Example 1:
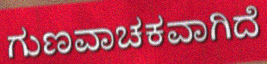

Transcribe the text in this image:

ಗುಣವಾಚಕವಾಗಿದೆ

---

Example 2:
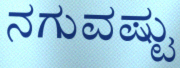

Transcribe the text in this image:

ನಗುವಷ್ಟು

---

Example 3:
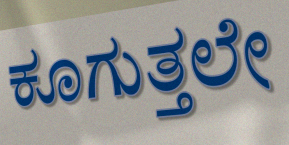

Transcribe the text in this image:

ಕೂಗುತ್ತಲೇ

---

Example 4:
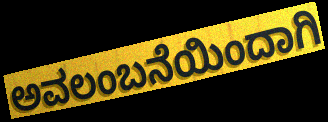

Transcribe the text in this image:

ಅವಲಂಬನೆಯಿಂದಾಗಿ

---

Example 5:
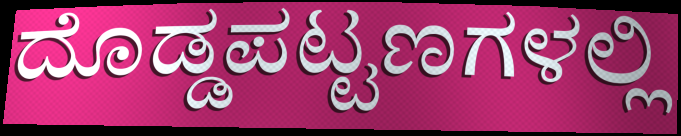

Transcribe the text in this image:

ದೊಡ್ಡಪಟ್ಟಣಗಳಲ್ಲಿ